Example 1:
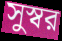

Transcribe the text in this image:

সুস্বর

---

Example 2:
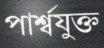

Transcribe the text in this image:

পার্শ্বযুক্ত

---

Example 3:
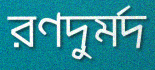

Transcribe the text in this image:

রণদুর্মদ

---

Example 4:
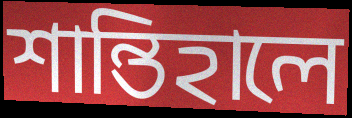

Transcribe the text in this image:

শান্তিহালে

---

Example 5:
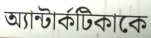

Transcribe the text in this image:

অ্যান্টার্কটিকাকে